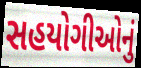
સહયોગીઓનું